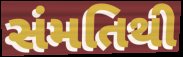
સંમતિથી